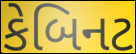
કેબિનટ